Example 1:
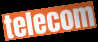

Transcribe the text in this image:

telecom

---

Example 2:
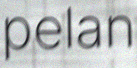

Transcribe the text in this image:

pelan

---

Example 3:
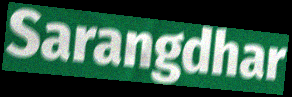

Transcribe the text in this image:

Sarangdhar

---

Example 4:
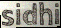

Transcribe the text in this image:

sidhi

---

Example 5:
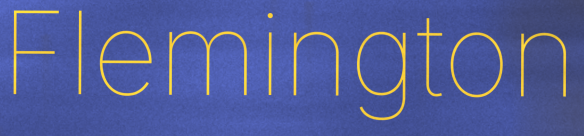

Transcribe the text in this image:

Flemington